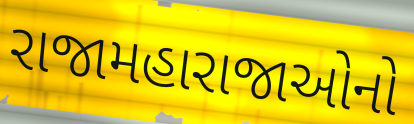
રાજામહારાજાઓનો